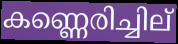
കണ്ണെരിച്ചില്